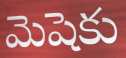
మెషెకు